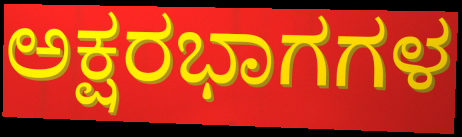
ಅಕ್ಷರಭಾಗಗಳ